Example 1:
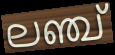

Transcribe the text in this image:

ലഞ്ച്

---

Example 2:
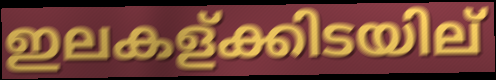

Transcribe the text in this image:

ഇലകള്ക്കിടയില്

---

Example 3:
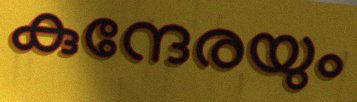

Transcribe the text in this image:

കുന്ദേരയും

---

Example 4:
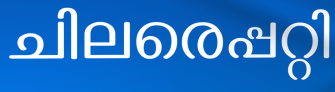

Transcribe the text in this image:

ചിലരെപ്പറ്റി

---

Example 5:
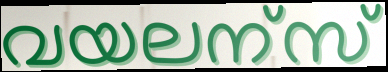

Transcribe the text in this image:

വയലന്സ്